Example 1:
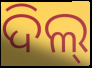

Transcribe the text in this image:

ଦିଲ୍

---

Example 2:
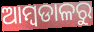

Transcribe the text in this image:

ଆମ୍ବଡାଳରୁ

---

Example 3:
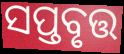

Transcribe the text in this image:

ସପ୍ତବୃତ୍ତ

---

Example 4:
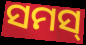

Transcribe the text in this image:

ସମସ୍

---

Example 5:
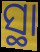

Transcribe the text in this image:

ସ୍ଥା